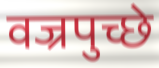
वज्रपुच्छे